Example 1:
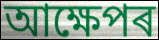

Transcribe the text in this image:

আক্ষেপৰ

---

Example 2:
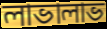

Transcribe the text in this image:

লাভালাভ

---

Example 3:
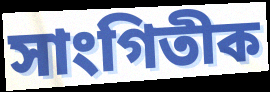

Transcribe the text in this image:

সাংগিতীক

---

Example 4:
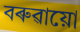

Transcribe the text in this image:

বৰুৱায়ো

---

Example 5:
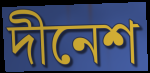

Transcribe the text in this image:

দীনেশ